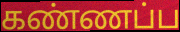
கண்ணப்ப